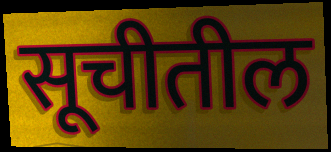
सूचीतील